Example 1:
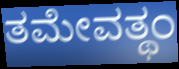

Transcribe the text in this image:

ತಮೇವತ್ಥಂ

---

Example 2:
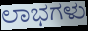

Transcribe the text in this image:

ಲಾಭಗಳು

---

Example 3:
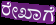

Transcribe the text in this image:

ರೇಖಾಗೆ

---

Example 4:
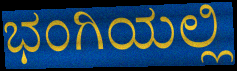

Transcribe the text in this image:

ಭಂಗಿಯಲ್ಲಿ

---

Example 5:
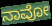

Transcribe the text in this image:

ನಾವೋ